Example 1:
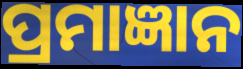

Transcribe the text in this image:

ପ୍ରମାଜ୍ଞାନ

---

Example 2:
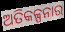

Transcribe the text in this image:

ଅତିକଳ୍ପନାର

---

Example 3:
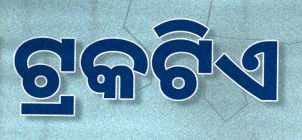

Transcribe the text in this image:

ଟ୍ରକଟିଏ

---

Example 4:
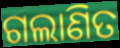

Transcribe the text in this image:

ଗଲାଣିତ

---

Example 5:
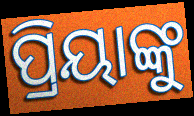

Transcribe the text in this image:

ପ୍ରିୟାଙ୍କୁ